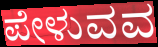
ಪೇಳುವವ